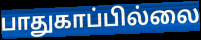
பாதுகாப்பில்லை